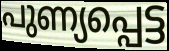
പുണ്യപ്പെട്ട